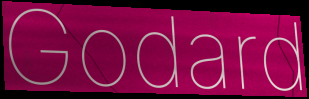
Godard